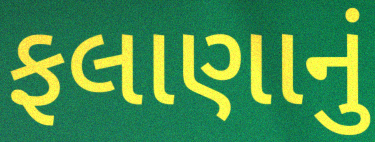
ફલાણાનું